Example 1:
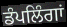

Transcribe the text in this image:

ਡੰਪਲਿੰਗਾਂ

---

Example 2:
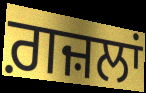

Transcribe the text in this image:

ਗ਼ਜ਼ਲਾਂ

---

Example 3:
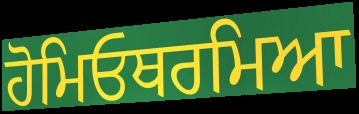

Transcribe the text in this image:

ਹੋਮਿਓਥਰਮਿਆ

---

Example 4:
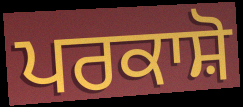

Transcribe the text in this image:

ਪਰਕਾਸ਼ੋ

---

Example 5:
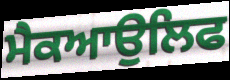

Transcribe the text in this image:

ਮੈਕਆਉਲਿਫ